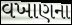
વખાણના